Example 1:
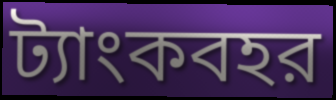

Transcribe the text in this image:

ট্যাংকবহর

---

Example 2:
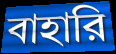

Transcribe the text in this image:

বাহারি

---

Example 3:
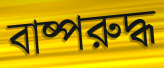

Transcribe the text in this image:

বাষ্পরুদ্ধ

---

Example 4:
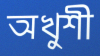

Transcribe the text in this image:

অখুশী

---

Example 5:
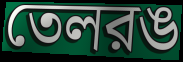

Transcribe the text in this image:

তেলরঙ